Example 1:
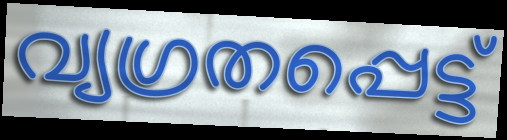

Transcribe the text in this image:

വ്യഗ്രതപ്പെട്ട്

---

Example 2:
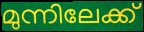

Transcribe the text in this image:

മുന്നിലേക്ക്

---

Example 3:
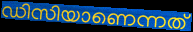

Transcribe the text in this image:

ഡിസിയാണെന്നത്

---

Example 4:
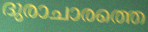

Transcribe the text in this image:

ദുരാചാരത്തെ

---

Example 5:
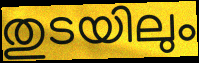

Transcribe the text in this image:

തുടയിലും